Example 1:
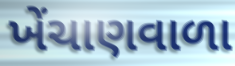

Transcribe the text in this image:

ખેંચાણવાળા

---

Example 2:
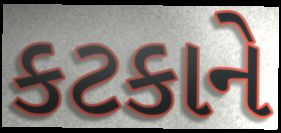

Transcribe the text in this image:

કટકાને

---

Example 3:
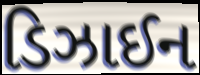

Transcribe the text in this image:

ડિઝાઈન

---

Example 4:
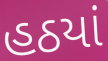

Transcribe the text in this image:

હઠયાં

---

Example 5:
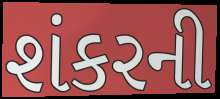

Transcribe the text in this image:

શંકરની